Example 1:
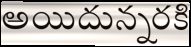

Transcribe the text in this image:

అయిదున్నరకి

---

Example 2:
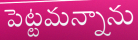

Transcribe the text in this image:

పెట్టమన్నాను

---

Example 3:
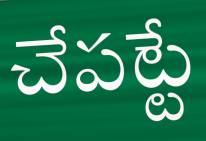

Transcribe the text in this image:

చేపట్టే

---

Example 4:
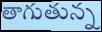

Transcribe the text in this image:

తాగుతున్న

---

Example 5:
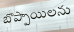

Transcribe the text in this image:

బొప్పాయిలను